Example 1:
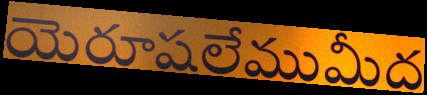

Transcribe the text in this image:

యెరూషలేముమీద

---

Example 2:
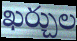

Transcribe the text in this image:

ఖర్చుల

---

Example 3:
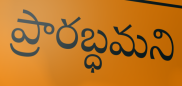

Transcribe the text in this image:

ప్రారబ్ధమని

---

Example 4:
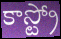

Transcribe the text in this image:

కాస్ట్రో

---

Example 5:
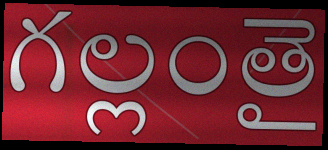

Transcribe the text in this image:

గల్లంతై